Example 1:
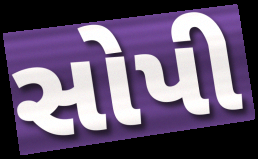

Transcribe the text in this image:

સોપી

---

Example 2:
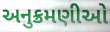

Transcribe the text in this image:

અનુક્રમણીઓ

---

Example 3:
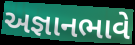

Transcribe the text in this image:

અજ્ઞાનભાવે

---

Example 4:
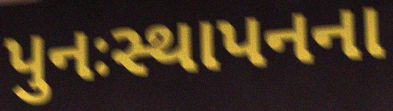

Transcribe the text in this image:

પુનઃસ્થાપનના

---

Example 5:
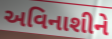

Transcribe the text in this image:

અવિનાશીને